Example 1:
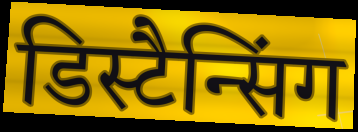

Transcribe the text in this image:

डिस्टैन्सिंग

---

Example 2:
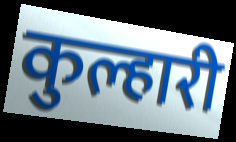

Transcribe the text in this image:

कुल्हारी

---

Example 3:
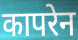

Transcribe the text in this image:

कापरेन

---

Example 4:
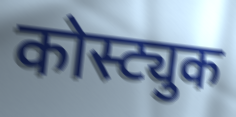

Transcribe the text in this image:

कोस्ट्युक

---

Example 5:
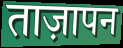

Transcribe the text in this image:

ताज़ापन